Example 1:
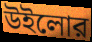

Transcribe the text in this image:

উইলোর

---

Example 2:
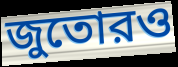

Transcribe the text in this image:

জুতোরও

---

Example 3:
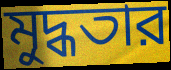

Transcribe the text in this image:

মুদ্ধতার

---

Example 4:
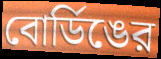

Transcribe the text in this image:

বোর্ডিঙের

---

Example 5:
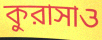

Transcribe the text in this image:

কুরাসাও